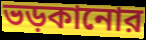
ভড়কানোর